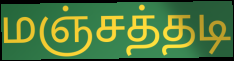
மஞ்சத்தடி